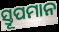
ସ୍ତୂପମାନ